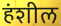
हंशील